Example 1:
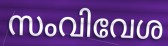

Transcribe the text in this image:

സംവിവേശ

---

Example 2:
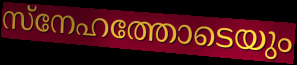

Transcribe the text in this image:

സ്നേഹത്തോടെയും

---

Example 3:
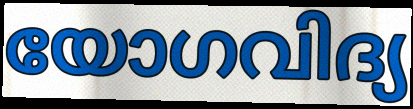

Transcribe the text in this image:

യോഗവിദ്യ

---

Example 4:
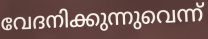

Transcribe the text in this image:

വേദനിക്കുന്നുവെന്ന്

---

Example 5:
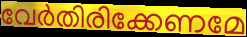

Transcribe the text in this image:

വേർതിരിക്കേണമേ